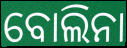
ବୋଲିନା